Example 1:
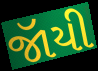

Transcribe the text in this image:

જૉયી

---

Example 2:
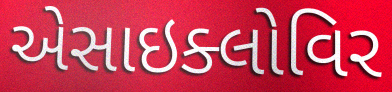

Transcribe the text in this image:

એસાઇક્લોવિર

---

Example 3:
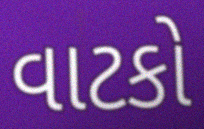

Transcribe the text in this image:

વાટકો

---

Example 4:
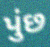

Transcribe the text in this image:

પુંછ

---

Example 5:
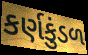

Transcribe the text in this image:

કર્ણકુંડળ